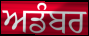
ਅਡੰਬਰ